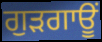
ਗੁੜਗਾਊਂ